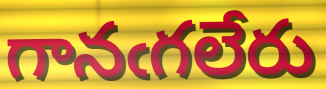
గానఁగలేరు